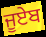
ਜੂਏਬ